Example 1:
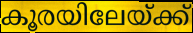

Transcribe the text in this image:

കൂരയിലേയ്ക്ക്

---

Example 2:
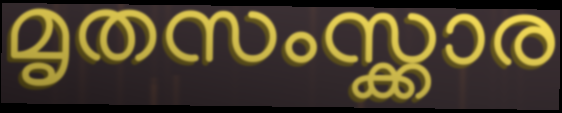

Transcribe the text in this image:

മൃതസംസ്ക്കാര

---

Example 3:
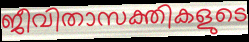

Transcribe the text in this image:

ജീവിതാസക്തികളുടെ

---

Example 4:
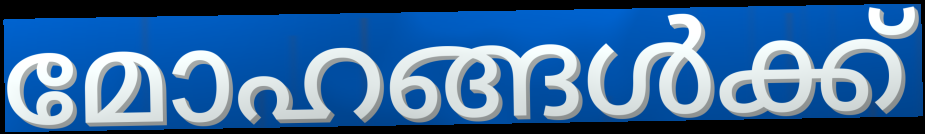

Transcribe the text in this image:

മോഹങ്ങൾക്ക്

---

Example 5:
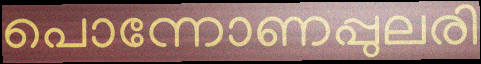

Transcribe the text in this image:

പൊന്നോണപ്പുലരി